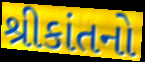
શ્રીકાંતનો